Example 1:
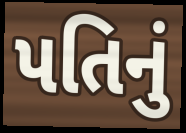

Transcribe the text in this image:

પતિનું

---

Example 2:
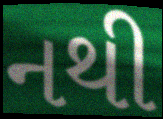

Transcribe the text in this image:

નથી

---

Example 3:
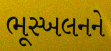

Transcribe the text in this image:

ભૂસ્ખલનને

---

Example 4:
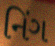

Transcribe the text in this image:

નિંગ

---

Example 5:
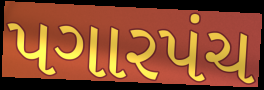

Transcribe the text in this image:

પગારપંચ